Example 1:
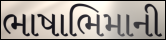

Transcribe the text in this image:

ભાષાભિમાની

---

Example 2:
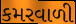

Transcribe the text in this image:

કમરવાળી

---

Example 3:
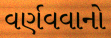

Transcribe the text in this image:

વર્ણવવાનો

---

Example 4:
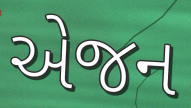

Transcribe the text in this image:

એજન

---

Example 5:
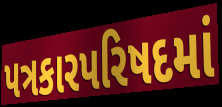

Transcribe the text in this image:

પત્રકારપરિષદમાં